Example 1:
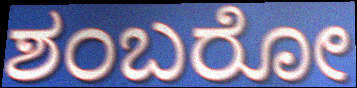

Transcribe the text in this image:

ಶಂಬರೋ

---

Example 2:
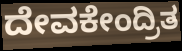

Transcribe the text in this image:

ದೇವಕೇಂದ್ರಿತ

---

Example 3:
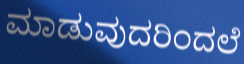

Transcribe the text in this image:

ಮಾಡುವುದರಿಂದಲೆ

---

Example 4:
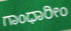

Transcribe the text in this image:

ಗಾಂಧಾರೀಂ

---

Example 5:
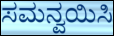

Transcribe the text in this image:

ಸಮನ್ವಯಿಸಿ